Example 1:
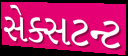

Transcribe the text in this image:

સેક્સટન્ટ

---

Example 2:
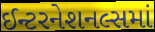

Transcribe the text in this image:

ઈન્ટરનેશનલ્સમાં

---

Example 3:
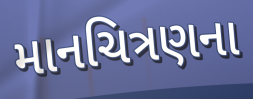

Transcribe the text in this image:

માનચિત્રણના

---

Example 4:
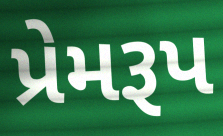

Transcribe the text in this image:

પ્રેમરૂપ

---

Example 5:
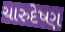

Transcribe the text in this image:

ચારુદેષ્ણ